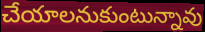
చేయాలనుకుంటున్నావు